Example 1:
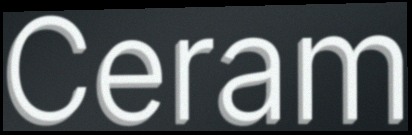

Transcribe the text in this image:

Ceram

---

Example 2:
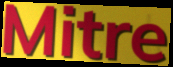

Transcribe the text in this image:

Mitre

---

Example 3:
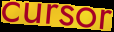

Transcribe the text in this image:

cursor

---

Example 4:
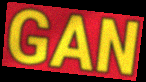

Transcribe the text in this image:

GAN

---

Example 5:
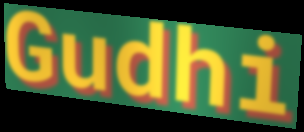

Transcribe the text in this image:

Gudhi